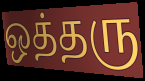
ஒத்தரு